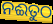
ନଈତୁଠ